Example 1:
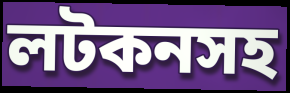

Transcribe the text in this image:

লটকনসহ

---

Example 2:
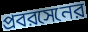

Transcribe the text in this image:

প্রবরসেনের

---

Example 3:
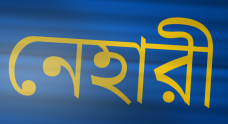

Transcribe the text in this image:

নেহারী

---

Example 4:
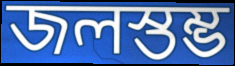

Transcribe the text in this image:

জলস্তম্ভ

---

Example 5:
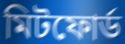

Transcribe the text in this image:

মিটফোর্ড